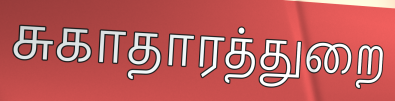
சுகாதாரத்துறை